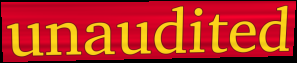
unaudited